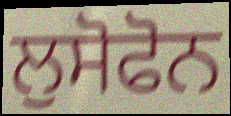
ਲੁਸੋਫੋਨ